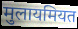
मुलायमियत